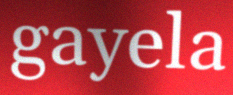
gayela